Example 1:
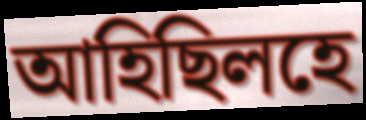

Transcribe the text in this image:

আহিছিলহে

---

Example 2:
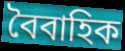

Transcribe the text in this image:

বৈবাহিক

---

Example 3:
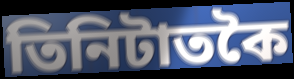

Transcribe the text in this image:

তিনিটাতকৈ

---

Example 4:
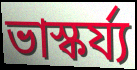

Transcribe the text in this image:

ভাস্কৰ্য্য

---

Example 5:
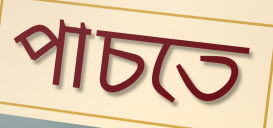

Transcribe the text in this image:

পাচতে